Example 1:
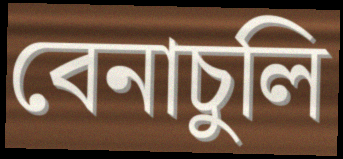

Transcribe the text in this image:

বেনাচুলি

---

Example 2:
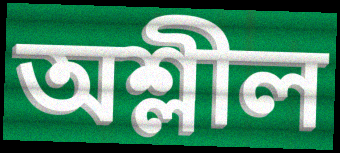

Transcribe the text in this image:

অশ্লীল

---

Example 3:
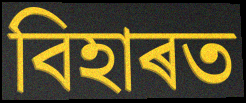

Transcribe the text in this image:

বিহাৰত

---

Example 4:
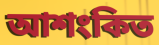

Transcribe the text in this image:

আশংকিত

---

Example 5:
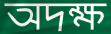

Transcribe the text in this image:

অদক্ষ